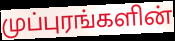
முப்புரங்களின்